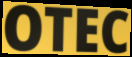
OTEC